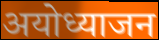
अयोध्याजन